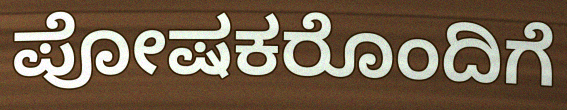
ಪೋಷಕರೊಂದಿಗೆ